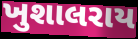
ખુશાલરાય